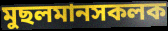
মুছলমানসকলক